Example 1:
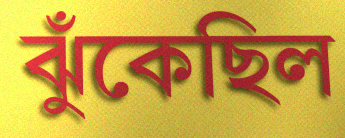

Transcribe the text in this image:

ঝুঁকেছিল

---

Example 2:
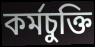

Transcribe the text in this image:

কর্মচুক্তি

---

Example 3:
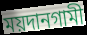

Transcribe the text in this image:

ময়দানগামী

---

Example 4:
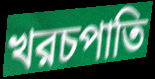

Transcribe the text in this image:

খরচপাতি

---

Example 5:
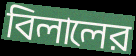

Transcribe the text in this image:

বিলালের